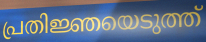
പ്രതിജ്ഞയെടുത്ത്